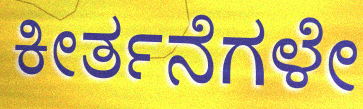
ಕೀರ್ತನೆಗಳೇ